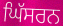
ਘਿੱਸਰਨ